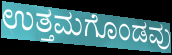
ಉತ್ತಮಗೊಂಡವು